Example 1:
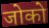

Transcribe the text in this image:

जोको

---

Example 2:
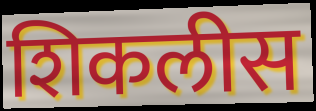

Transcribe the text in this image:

शिकलीस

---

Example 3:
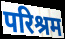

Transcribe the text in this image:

परिश्रम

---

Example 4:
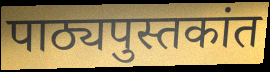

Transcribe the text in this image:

पाठ्यपुस्तकांत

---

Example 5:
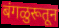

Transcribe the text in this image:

बंगळुरूतून